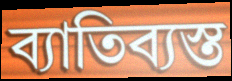
ব্যাতিব্যস্ত